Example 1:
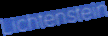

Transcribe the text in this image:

Lichtenstein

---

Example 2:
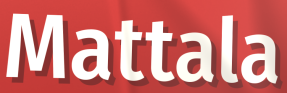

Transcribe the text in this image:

Mattala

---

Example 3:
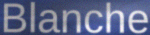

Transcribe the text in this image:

Blanche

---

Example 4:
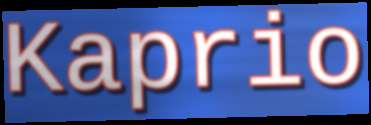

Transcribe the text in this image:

Kaprio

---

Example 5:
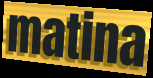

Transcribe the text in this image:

matina